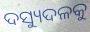
ଦସ୍ୟୁଦଳକୁ